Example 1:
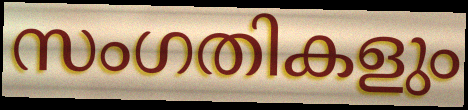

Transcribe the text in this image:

സംഗതികളും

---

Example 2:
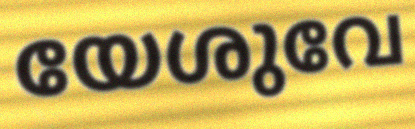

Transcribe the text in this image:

യേശുവേ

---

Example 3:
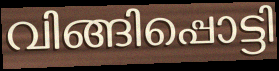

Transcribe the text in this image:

വിങ്ങിപ്പൊട്ടി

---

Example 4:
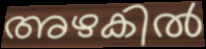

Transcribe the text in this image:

അഴകിൽ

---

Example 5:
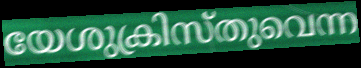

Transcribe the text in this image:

യേശുക്രിസ്തുവെന്ന